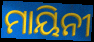
ମାୟିନୀ